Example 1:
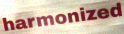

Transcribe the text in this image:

harmonized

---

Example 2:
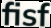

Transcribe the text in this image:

fisf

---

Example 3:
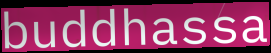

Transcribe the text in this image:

buddhassa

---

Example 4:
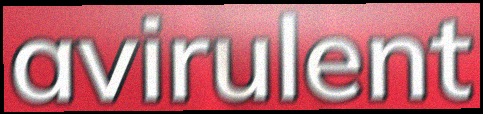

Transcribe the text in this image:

avirulent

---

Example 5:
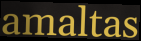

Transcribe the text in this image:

amaltas